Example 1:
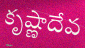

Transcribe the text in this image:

కృష్ణాదేవ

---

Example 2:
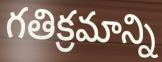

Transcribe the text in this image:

గతిక్రమాన్ని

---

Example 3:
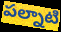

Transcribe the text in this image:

పల్నాటి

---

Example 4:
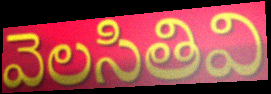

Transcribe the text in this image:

వెలసితివి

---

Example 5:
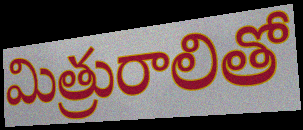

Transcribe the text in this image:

మిత్రురాలితో